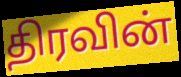
திரவின்